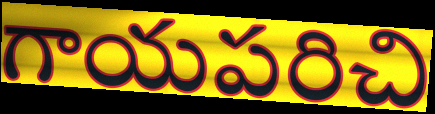
గాయపరిచి